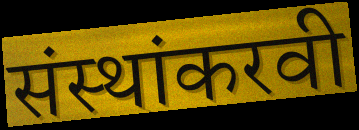
संस्थांकरवी